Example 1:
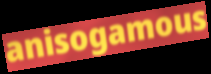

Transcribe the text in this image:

anisogamous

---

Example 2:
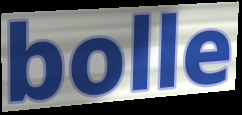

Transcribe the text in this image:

bolle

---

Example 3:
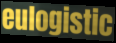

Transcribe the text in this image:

eulogistic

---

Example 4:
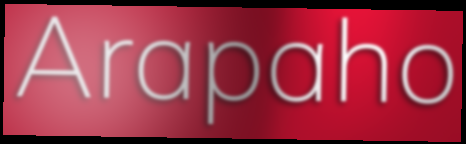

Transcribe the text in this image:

Arapaho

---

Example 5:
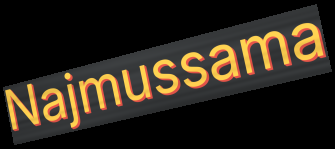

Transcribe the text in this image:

Najmussama